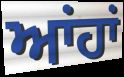
ਆਂਹਾਂ